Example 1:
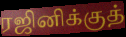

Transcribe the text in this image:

ரஜினிக்குத்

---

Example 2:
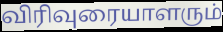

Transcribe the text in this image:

விரிவுரையாளரும்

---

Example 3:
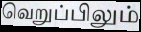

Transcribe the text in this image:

வெறுப்பிலும்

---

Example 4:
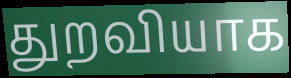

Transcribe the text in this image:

துறவியாக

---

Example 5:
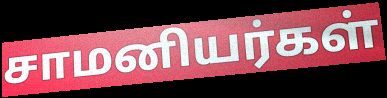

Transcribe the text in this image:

சாமனியர்கள்